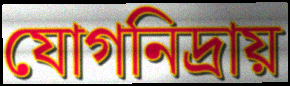
যোগনিদ্রায়